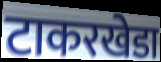
टाकरखेडा